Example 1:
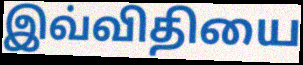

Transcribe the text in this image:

இவ்விதியை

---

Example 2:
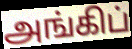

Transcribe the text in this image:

அங்கிப்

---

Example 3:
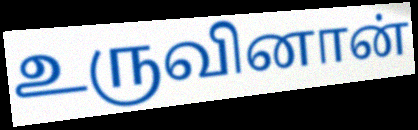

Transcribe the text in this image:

உருவினான்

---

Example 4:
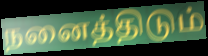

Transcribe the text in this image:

நனைத்திடும்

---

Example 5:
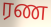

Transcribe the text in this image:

ரண